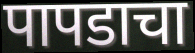
पापडाचा